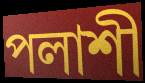
পলাশী